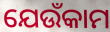
ଯେଉଁକାମ